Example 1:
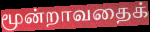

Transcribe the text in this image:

மூன்றாவதைக்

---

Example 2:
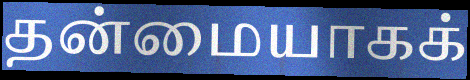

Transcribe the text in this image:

தன்மையாகக்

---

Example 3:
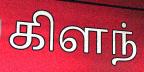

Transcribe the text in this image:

கிளந்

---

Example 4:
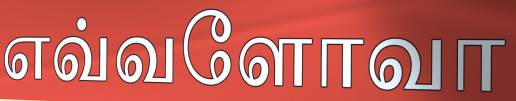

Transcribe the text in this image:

எவ்வளோவா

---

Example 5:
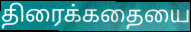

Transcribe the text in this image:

திரைக்கதையை